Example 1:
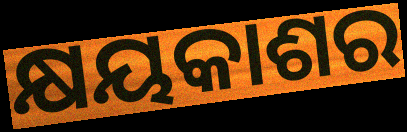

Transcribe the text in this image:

କ୍ଷୟକାଶର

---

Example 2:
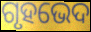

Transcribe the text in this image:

ଗୃହଭେଦ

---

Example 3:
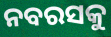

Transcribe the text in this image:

ନବରସକୁ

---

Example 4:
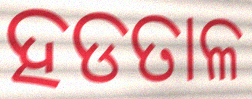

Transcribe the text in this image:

ହଡତାଳ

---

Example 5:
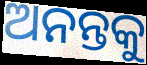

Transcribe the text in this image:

ଅନନ୍ତକୁ